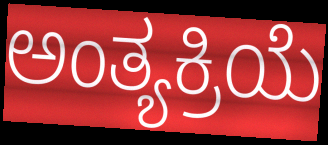
ಅಂತ್ಯಕ್ರಿಯೆ